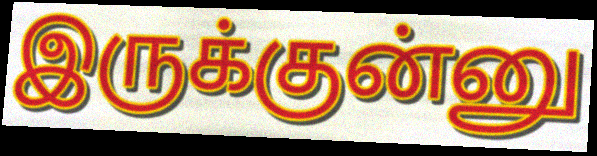
இருக்குன்னு